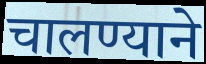
चालण्याने